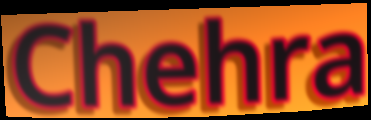
Chehra